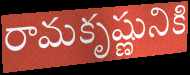
రామకృష్ణునికి